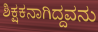
ಶಿಕ್ಷಕನಾಗಿದ್ದವನು